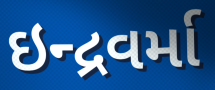
ઇન્દ્રવર્મા